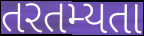
તરતમ્યતા